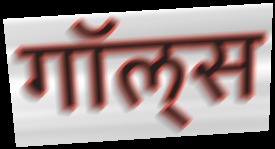
गॉल्स